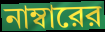
নাম্বারের